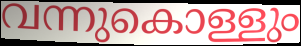
വന്നുകൊള്ളും